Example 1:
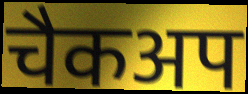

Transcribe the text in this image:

चैकअप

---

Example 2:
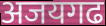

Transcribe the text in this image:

अजयगढ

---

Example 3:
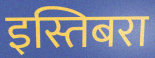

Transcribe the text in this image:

इस्तिबरा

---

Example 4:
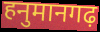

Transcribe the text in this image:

हनुमानगढ़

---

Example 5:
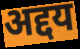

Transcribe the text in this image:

अद्दय